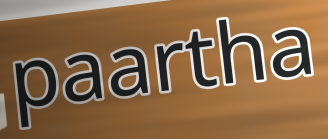
paartha